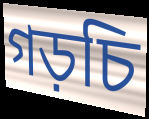
গড়চি